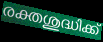
രക്തശുദ്ധിക്ക്